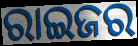
ରାଇଜର